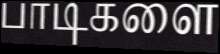
பாடிகளை